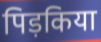
पिड़किया